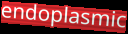
endoplasmic